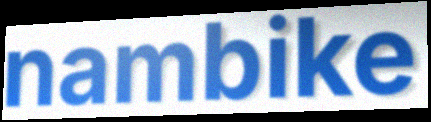
nambike